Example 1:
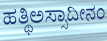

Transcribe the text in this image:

ಹತ್ಥಿಅಸ್ಸಾದೀನಂ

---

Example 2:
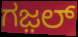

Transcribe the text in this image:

ಗಜ಼ಲ್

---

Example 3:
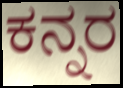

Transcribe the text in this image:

ಕನ್ನರ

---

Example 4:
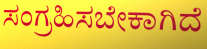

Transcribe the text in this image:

ಸಂಗ್ರಹಿಸಬೇಕಾಗಿದೆ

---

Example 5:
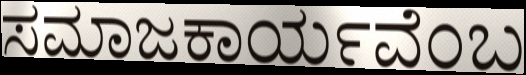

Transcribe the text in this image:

ಸಮಾಜಕಾರ್ಯವೆಂಬ